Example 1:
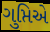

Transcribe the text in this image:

ગુપ્તિએ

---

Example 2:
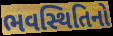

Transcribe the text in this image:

ભવસ્થિતિનો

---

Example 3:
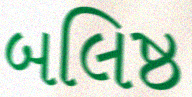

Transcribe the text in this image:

બલિષ્ઠ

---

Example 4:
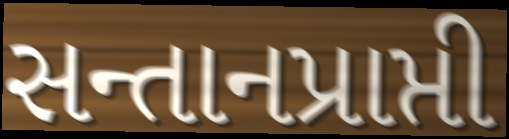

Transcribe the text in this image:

સન્તાનપ્રાપ્તી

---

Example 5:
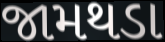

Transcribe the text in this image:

જામથડા